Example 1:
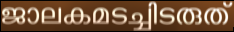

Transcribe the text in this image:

ജാലകമടച്ചിടരുത്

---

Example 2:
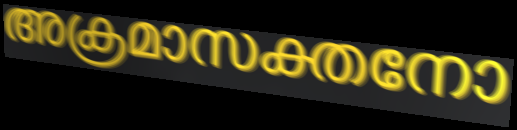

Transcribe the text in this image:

അക്രമാസക്തനോ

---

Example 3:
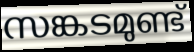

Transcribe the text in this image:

സങ്കടമുണ്ട്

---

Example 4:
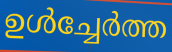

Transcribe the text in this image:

ഉൾച്ചേർത്ത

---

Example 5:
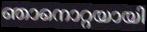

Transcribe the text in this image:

ഞാനൊറ്റയായി